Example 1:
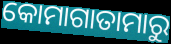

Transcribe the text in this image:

କୋମାଗାତାମାରୁ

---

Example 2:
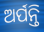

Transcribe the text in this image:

ଅର୍ପନ୍ତି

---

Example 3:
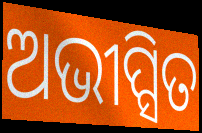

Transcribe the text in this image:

ଅଭୀପ୍ସିତ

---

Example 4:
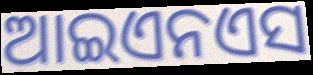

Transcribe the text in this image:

ଆଇଏନଏସ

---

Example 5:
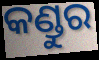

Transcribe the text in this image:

କଣ୍ଡୁର